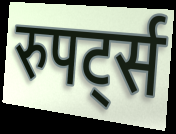
रुपर्ट्स